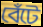
বেঁটে